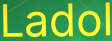
Ladol